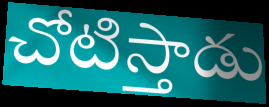
చోటిస్తాడు